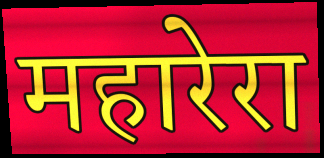
महारेरा